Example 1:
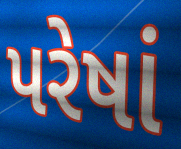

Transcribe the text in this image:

પરેષાં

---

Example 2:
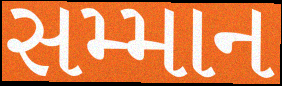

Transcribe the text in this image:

સમ્માન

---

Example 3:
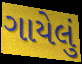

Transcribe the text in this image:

ગાયેલું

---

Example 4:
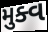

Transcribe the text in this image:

મુક્વ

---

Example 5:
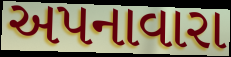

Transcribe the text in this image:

અપનાવારા